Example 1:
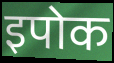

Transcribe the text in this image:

इपोक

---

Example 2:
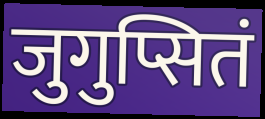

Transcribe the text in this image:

जुगुप्सितं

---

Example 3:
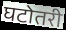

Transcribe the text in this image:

घटोतरी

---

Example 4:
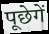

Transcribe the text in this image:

पूछेगें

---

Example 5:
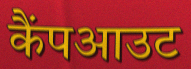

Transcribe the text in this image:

कैंपआउट